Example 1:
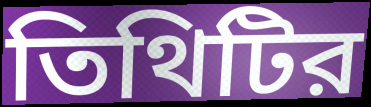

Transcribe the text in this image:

তিথিটির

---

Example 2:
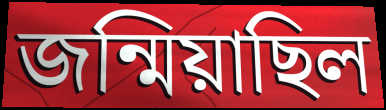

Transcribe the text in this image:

জন্মিয়াছিল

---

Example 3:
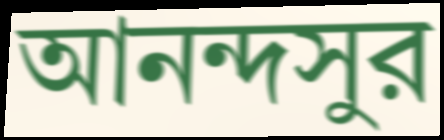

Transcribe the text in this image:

আনন্দসুর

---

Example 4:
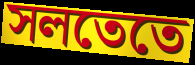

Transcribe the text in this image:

সলতেতে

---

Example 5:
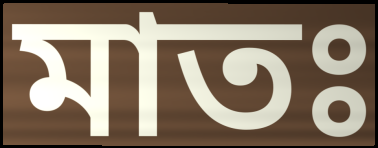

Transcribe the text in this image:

মাতঃ